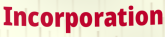
Incorporation